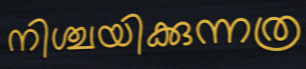
നിശ്ചയിക്കുന്നത്ര